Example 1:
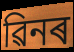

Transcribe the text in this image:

ৱিনৰ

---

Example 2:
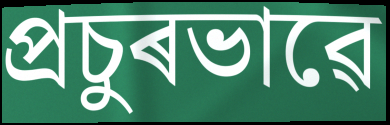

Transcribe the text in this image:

প্ৰচুৰভাৱে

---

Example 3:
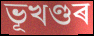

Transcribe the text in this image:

ভূখণ্ডৰ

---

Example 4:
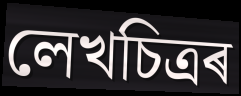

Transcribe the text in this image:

লেখচিত্ৰৰ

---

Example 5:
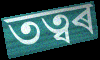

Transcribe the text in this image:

তত্বৰ